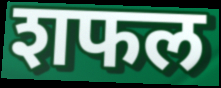
शफल